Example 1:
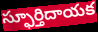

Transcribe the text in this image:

స్ఫూర్తిదాయక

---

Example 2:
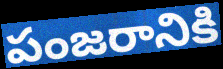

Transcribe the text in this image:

పంజరానికి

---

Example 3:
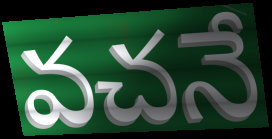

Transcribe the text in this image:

వచనే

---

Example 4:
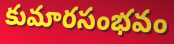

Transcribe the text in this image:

కుమారసంభవం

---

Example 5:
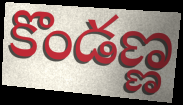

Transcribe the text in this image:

కొండణ్ణ